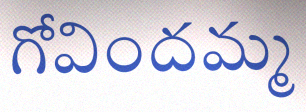
గోవిందమ్మ